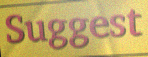
Suggest